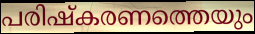
പരിഷ്കരണത്തെയും